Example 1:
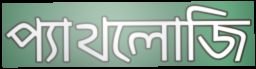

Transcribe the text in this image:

প্যাথলোজি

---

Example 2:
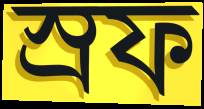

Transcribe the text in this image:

স্রফ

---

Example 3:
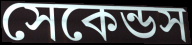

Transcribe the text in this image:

সেকেন্ডস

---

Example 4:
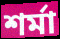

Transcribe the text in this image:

শর্মা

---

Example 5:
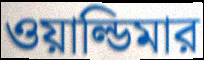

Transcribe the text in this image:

ওয়াল্ডিমার